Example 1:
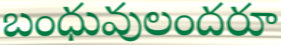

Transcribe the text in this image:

బంధువులందరూ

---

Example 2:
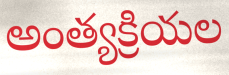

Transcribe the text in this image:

అంత్యక్రియల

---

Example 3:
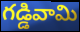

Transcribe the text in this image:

గడ్డివామి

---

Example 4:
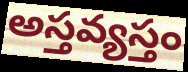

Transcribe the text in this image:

అస్తవ్యస్తం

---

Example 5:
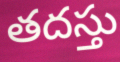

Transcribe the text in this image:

తదస్తు